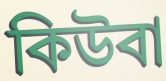
কিউবা